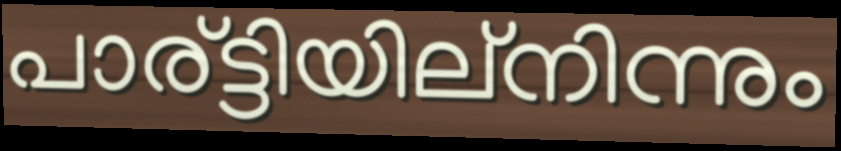
പാര്ട്ടിയില്നിന്നും